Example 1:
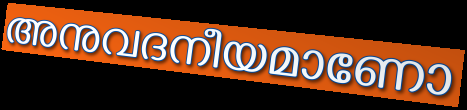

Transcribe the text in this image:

അനുവദനീയമാണോ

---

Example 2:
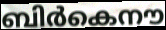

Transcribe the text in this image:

ബിർകെനൗ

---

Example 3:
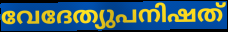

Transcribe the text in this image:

വേദേത്യുപനിഷത്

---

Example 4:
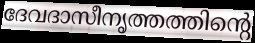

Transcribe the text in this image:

ദേവദാസീനൃത്തത്തിന്റെ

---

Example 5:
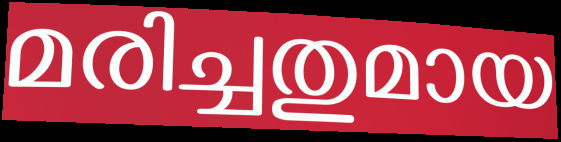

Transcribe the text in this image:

മരിച്ചതുമായ